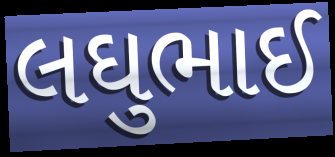
લઘુભાઈ